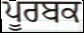
ਪੂਰਬਕ